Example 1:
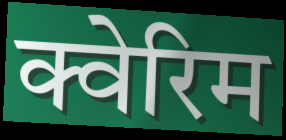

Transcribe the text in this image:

क्वेरिम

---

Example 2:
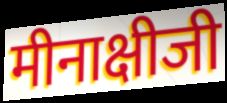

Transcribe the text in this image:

मीनाक्षीजी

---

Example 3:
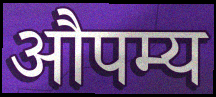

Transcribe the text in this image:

औपम्य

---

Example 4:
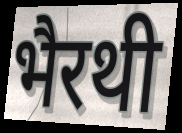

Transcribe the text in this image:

भैरथी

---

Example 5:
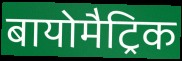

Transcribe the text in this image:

बायोमैट्रिक